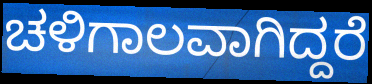
ಚಳಿಗಾಲವಾಗಿದ್ದರೆ